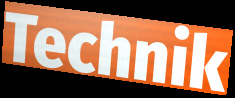
Technik